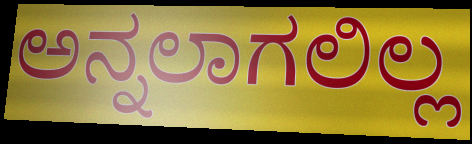
ಅನ್ನಲಾಗಲಿಲ್ಲ